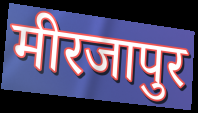
मीरजापुर